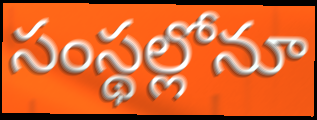
సంస్థల్లోనూ